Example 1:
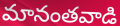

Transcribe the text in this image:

మానంతవాడి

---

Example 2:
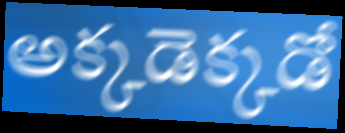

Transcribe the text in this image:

అక్కడెక్కడో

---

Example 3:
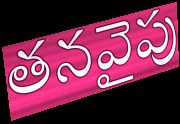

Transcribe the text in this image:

తనవైపు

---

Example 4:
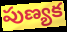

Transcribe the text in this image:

పుణ్యక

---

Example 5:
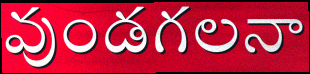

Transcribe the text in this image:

వుండగలనా